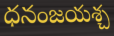
ధనంజయశ్చ